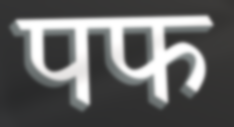
पफ